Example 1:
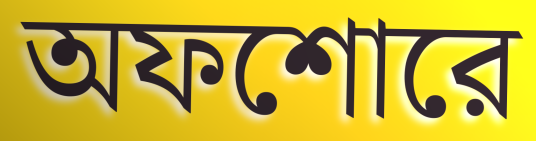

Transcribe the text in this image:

অফশোরে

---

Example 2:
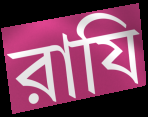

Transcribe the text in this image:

রাযি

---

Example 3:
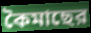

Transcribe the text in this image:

কৈমাছের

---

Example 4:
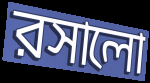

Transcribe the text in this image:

রসালো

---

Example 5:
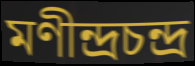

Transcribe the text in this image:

মণীন্দ্রচন্দ্র